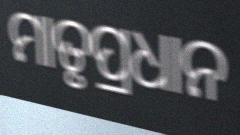
ମାତୃପ୍ରଧାନ